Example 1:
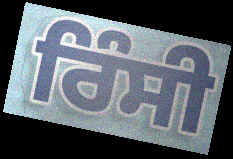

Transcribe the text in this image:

ਰਿੰਸੀ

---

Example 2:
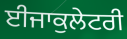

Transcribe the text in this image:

ਈਜਾਕੁਲੇਟਰੀ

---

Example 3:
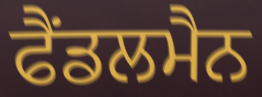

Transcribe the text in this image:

ਫੈਂਡਲਮੈਨ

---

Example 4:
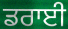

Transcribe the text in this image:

ਡਰਾਈ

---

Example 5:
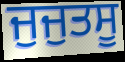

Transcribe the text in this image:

ਜੁਜੁਤਸੂ